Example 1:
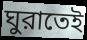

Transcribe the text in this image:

ঘুরাতেই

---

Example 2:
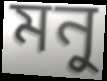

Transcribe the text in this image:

মনু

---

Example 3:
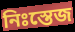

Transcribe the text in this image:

নিঃস্তেজ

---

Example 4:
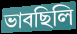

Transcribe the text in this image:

ভাবছিলি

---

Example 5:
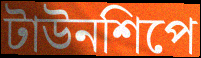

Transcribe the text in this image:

টাউনশিপে